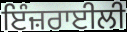
ਇੰਜ਼ਰਾਈਲੀ